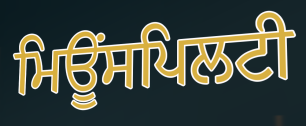
ਮਿਊਂਸਪਿਲਟੀ